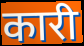
कारी